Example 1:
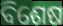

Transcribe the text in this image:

ବିଶେଷ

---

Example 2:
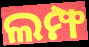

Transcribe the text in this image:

ଲମ୍ଫ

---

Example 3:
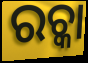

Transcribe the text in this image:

ରଚ୍କା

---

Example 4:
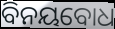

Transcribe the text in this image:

ବିନୟବୋଧ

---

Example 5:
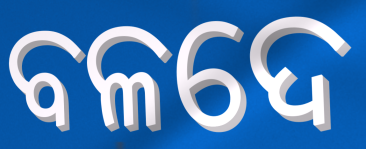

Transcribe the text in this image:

ବଳଦେ